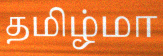
தமிழ்மா